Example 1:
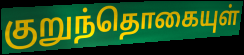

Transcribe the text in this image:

குறுந்தொகையுள்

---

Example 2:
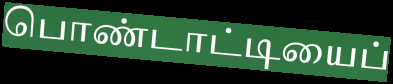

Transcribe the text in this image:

பொண்டாட்டியைப்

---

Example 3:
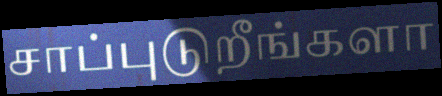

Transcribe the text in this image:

சாப்புடுறீங்களா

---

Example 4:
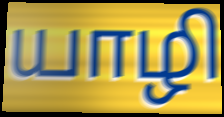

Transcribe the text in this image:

யாழி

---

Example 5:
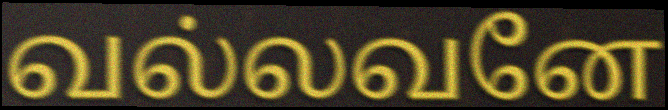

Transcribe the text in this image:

வல்லவனே